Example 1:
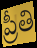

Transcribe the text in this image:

ప్రీతి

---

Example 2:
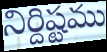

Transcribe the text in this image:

నిర్దిష్టము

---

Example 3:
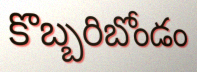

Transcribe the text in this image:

కొబ్బరిబోండం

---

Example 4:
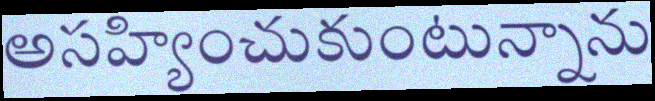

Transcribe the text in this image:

అసహ్యించుకుంటున్నాను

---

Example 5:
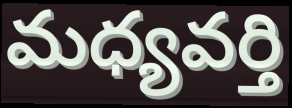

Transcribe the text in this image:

మధ్యవర్తి